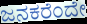
ಜನಕರೆಂದೇ